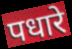
पधारे